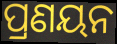
ପ୍ରଣୟନ